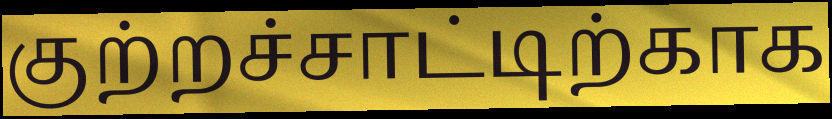
குற்றச்சாட்டிற்காக